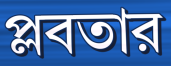
প্লবতার